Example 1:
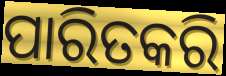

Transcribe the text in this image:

ପାରିତକରି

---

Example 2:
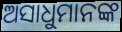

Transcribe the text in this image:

ଅସାଧୁମାନଙ୍କ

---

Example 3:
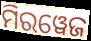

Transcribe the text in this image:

ମିରୱେଜ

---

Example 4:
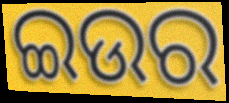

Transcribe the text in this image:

ଇଉର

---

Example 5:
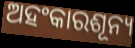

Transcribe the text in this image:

ଅହଂକାରଶୂନ୍ୟ